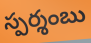
స్పర్శంబు